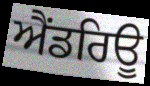
ਐਂਡਰਿਊ